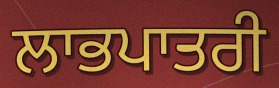
ਲਾਭਪਾਤਰੀ